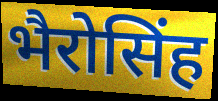
भैरोसिंह